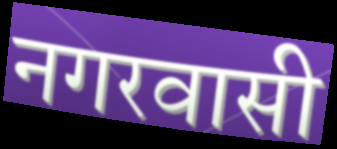
नगरवासी